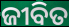
ଜୀବିତ